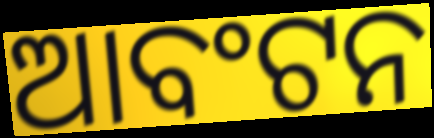
ଆବଂଟନ